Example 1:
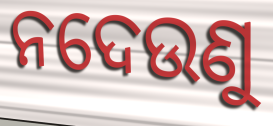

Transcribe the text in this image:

ନଦେଉଣୁ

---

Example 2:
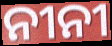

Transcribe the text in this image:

ନୀନୀ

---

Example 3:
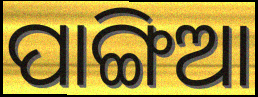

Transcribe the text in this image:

ପାଙ୍ଗିଆ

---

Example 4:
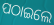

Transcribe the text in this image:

ପଠାଇଲେ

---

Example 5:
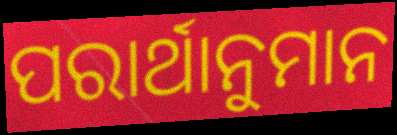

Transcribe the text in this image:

ପରାର୍ଥାନୁମାନ